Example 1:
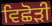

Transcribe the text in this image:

ਵਿਛੋੜੀ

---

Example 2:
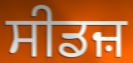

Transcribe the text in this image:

ਸੀਡਜ਼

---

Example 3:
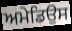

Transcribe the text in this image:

ਅਮੇਡਿਉਸ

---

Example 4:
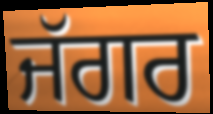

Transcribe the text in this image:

ਜੱਗਰ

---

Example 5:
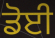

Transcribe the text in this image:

ਡੋਈ